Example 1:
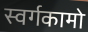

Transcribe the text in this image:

स्वर्गकामो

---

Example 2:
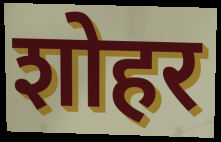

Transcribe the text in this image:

शोहर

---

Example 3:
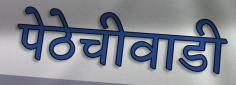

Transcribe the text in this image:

पेठेचीवाडी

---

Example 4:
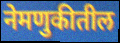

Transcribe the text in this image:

नेमणुकीतील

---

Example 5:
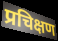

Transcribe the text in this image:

प्रचिक्षण